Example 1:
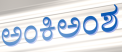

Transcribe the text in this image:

ಅಂಕಿಅಂಶ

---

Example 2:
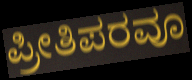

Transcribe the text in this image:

ಪ್ರೀತಿಪರವೂ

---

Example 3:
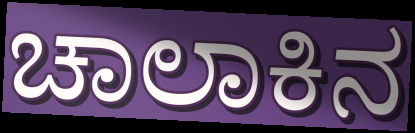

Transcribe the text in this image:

ಚಾಲಾಕಿನ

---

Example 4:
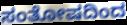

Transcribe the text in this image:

ಸಂತೋಷದಿಂದ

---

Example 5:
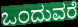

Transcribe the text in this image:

ಒಂದುವರೆ